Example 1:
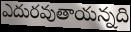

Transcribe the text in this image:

ఎదురవుతాయన్నది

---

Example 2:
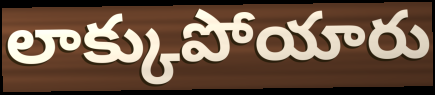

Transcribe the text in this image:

లాక్కుపోయారు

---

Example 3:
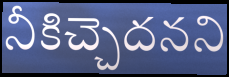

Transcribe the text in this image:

నీకిచ్చెదనని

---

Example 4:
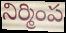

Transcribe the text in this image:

నిర్మింప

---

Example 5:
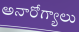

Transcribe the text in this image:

అనారోగ్యాలు